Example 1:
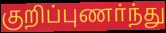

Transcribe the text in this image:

குறிப்புணர்ந்து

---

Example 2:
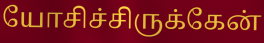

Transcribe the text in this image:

யோசிச்சிருக்கேன்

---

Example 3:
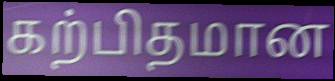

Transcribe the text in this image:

கற்பிதமான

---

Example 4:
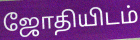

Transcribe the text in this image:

ஜோதியிடம்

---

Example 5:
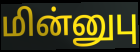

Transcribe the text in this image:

மின்னுபு